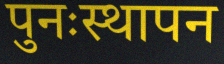
पुनःस्थापन